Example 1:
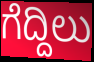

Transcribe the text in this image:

ಗೆದ್ದಿಲು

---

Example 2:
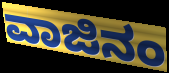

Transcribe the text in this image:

ವಾಜಿನಂ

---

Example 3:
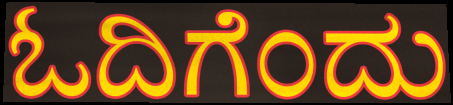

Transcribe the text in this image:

ಓದಿಗೆಂದು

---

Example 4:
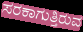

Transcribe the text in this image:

ಸರಕಾಗುತ್ತಿರುವ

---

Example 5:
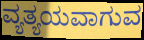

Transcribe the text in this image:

ವ್ಯತ್ಯಯವಾಗುವ